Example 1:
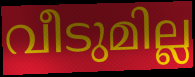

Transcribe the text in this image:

വീടുമില്ല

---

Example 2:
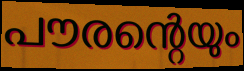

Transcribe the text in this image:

പൗരന്റെയും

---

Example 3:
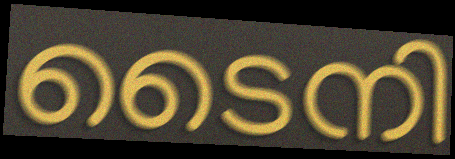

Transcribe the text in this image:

ടൈനി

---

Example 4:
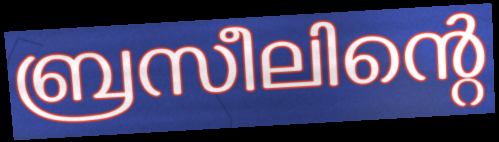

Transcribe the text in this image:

ബ്രസീലിന്റെ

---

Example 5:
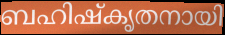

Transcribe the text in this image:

ബഹിഷ്കൃതനായി